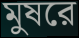
মুষরে